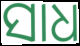
ସାଧ